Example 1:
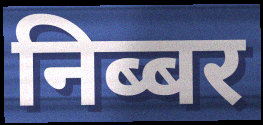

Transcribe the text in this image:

निब्बर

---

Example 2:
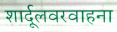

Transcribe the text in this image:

शार्दूलवरवाहना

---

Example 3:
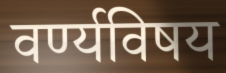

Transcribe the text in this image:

वर्ण्यविषय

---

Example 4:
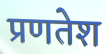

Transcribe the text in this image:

प्रणतेश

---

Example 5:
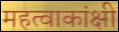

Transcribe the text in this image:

महत्वाकांक्षी